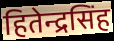
हितेन्द्रसिंह